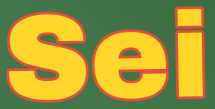
Sei